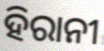
ହିରାନୀ